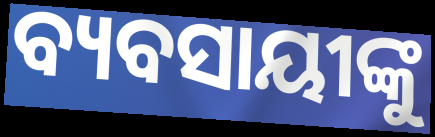
ବ୍ୟବସାୟୀଙ୍କୁ